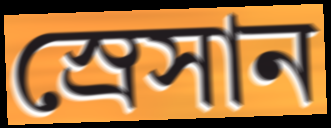
স্রেসান